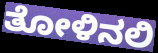
ತೋಳಿನಲಿ